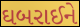
ઘબરાઈને